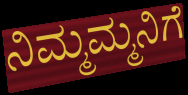
ನಿಮ್ಮಮ್ಮನಿಗೆ